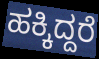
ಹಕ್ಕಿದ್ದರೆ